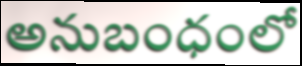
అనుబంధంలో